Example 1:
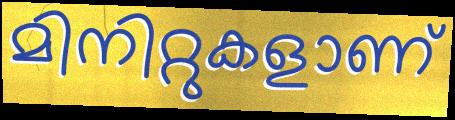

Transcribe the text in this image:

മിനിറ്റുകളാണ്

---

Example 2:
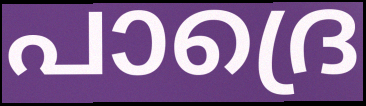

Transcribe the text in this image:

പാദ്രെ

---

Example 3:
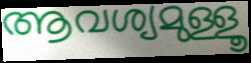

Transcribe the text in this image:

ആവശ്യമുള്ളൂ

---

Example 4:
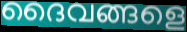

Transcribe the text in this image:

ദൈവങ്ങളെ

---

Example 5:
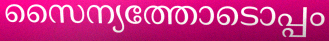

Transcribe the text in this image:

സൈന്യത്തോടൊപ്പം